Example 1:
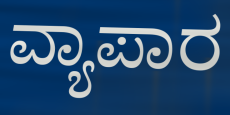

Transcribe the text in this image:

ವ್ಯಾಪಾರ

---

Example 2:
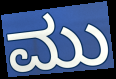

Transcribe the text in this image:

ಮು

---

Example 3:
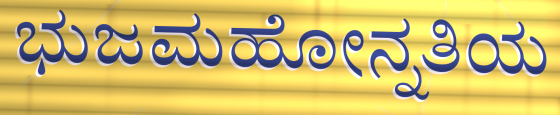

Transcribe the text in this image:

ಭುಜಮಹೋನ್ನತಿಯ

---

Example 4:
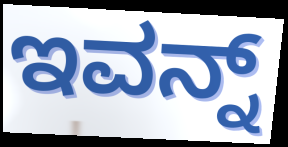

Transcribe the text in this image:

ಇವನ್ನ್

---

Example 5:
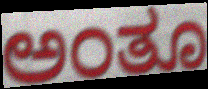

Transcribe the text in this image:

ಅಂತೂ